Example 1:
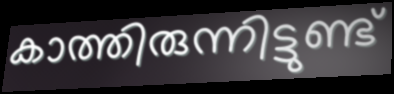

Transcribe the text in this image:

കാത്തിരുന്നിട്ടുണ്ട്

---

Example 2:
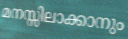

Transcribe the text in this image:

മനസ്സിലാക്കാനും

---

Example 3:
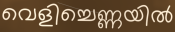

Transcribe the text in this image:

വെളിച്ചെണ്ണയിൽ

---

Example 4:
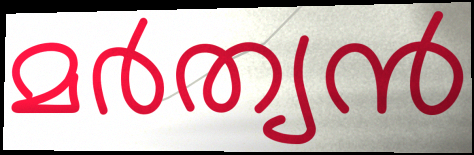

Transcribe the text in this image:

മർത്യൻ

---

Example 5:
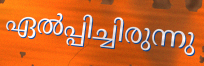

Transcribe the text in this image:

ഏൽപ്പിച്ചിരുന്നു